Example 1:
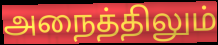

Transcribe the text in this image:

அநைத்திலும்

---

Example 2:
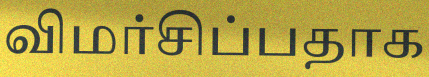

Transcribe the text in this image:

விமர்சிப்பதாக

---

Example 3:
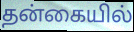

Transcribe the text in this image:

தன்கையில்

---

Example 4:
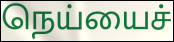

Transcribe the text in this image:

நெய்யைச்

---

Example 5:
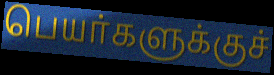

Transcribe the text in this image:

பெயர்களுக்குச்